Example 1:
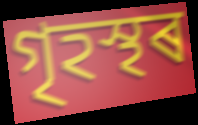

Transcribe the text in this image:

গৃহস্থৰ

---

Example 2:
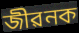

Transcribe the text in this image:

জীৱনক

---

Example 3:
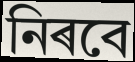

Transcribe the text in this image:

নিৰবে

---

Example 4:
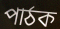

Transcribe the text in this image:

পাঠক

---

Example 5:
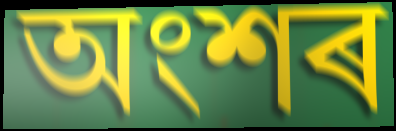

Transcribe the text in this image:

অংশৰ